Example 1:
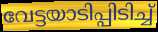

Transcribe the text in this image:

വേട്ടയാടിപ്പിടിച്ച്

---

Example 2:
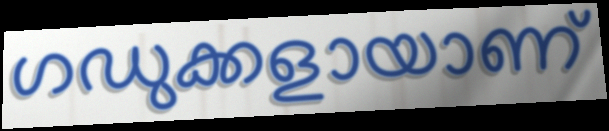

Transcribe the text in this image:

ഗഡുക്കളായാണ്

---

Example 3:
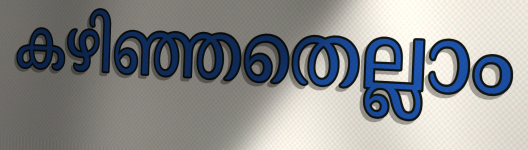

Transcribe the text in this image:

കഴിഞ്ഞതെല്ലാം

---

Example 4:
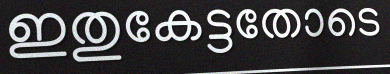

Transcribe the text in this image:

ഇതുകേട്ടതോടെ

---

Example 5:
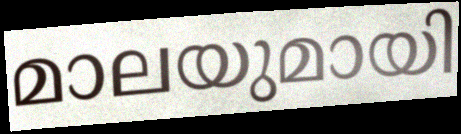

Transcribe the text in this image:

മാലയുമായി